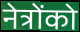
नेत्रोंको